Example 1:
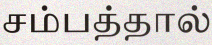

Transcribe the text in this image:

சம்பத்தால்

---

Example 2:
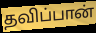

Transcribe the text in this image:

தவிப்பான்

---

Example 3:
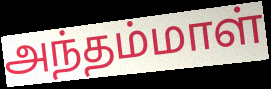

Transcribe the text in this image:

அந்தம்மாள்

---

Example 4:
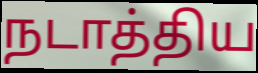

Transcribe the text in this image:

நடாத்திய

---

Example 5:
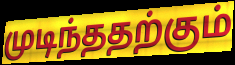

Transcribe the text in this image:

முடிந்ததற்கும்